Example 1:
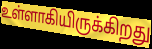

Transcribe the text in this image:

உள்ளாகியிருக்கிறது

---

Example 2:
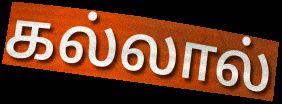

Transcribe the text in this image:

கல்லால்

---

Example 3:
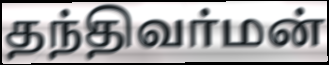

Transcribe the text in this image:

தந்திவர்மன்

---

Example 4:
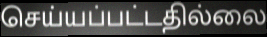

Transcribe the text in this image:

செய்யப்பட்டதில்லை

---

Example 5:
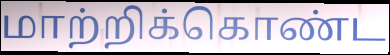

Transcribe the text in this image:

மாற்றிக்கொண்ட